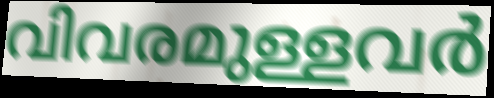
വിവരമുള്ളവർ